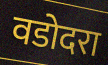
वडोदरा